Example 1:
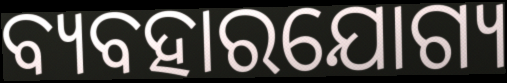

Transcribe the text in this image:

ବ୍ୟବହାରଯୋଗ୍ୟ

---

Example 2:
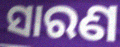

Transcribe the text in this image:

ସାରଣ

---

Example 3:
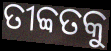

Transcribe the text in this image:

ତୀବ୍ବତକୁ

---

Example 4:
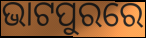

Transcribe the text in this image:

ଭାଟପୁରରେ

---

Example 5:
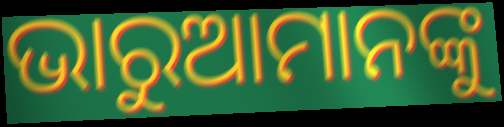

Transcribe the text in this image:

ଭାରୁଆମାନଙ୍କୁ